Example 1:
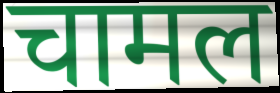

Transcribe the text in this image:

चामल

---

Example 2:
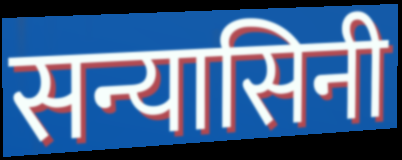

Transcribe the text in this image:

सन्यासिनी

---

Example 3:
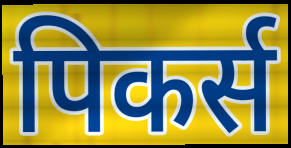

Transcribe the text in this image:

पिकर्स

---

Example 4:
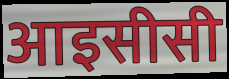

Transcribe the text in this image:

आइसीसी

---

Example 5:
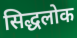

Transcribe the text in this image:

सिद्धलोक